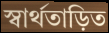
স্বার্থতাড়িত